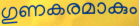
ഗുണകരമാകും